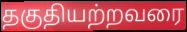
தகுதியற்றவரை